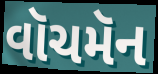
વૉચમૅન